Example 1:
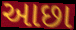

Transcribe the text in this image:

આછા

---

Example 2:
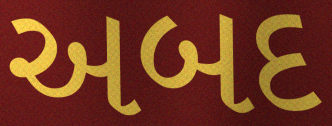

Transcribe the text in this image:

અબદ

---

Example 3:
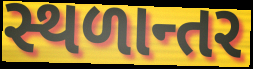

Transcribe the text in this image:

સ્થળાન્તર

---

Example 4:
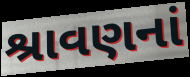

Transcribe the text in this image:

શ્રાવણનાં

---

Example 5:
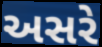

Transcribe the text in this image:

અસરે